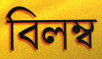
বিলম্ব